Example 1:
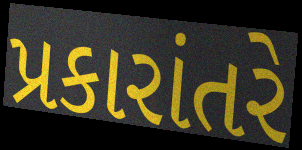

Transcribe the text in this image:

પ્રકારાંતરે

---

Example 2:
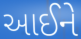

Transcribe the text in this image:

આઈને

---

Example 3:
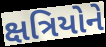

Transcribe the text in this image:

ક્ષત્રિયોને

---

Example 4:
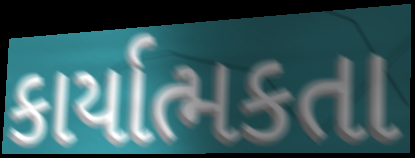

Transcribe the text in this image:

કાર્યાત્મકતા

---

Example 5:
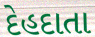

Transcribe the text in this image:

દેહદાતા